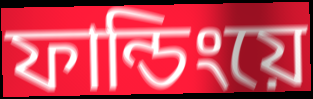
ফান্ডিংয়ে